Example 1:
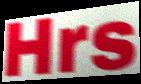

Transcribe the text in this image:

Hrs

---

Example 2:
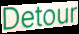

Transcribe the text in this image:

Detour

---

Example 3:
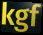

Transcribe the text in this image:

kgf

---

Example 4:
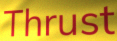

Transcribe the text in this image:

Thrust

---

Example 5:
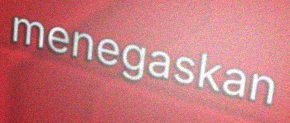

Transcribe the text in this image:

menegaskan